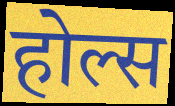
होल्स